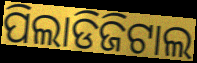
ପିଲାଡିଜିଟାଲ